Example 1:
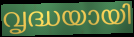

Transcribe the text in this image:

വൃദ്ധയായി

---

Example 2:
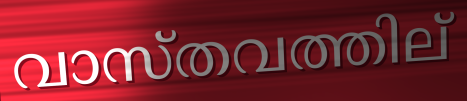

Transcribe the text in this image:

വാസ്തവത്തില്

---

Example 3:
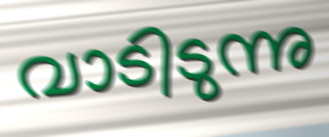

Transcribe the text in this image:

വാടിടുന്നു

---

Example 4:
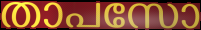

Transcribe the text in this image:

താപസോ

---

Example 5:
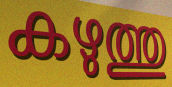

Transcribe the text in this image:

കഴുത്തു